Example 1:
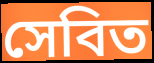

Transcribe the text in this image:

সেবিত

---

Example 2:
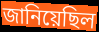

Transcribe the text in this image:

জানিয়েছিল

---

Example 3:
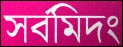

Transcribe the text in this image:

সর্বমিদং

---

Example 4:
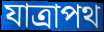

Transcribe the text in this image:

যাত্রাপথ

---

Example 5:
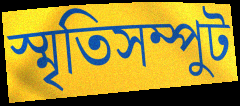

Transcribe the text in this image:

স্মৃতিসম্পুট